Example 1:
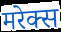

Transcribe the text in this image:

मरेक्स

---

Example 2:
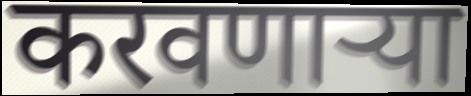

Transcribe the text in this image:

करवणाऱ्या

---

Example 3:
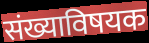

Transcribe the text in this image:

संख्याविषयक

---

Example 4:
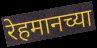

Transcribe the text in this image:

रेहमानच्या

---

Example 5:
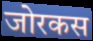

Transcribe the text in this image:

जोरकस